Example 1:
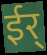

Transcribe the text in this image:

ईर्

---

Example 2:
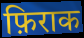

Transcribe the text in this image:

फ़िराक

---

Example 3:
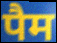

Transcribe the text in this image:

पैम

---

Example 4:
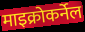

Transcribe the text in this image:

माइक्रोकर्नेल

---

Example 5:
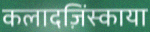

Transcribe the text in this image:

कलादज़िंस्काया